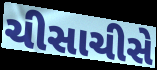
ચીસાચીસે